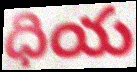
ధియ